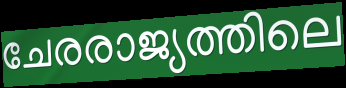
ചേരരാജ്യത്തിലെ